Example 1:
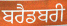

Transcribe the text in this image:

ਬਰੈਡਬਰੀ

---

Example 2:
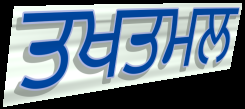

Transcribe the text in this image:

ਤਖਤਮਲ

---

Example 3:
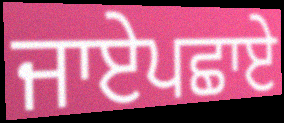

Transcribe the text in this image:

ਜਾਏਪਛਾਏ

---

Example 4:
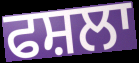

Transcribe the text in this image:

ਫਸ਼ਲਾ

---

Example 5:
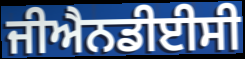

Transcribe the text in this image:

ਜੀਐਨਡੀਈਸੀ